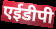
एईडीपी